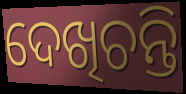
ଦେଖିଚନ୍ତି